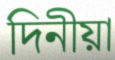
দিনীয়া